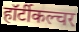
हॉर्टीकल्चर